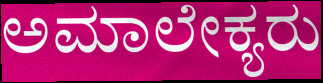
ಅಮಾಲೇಕ್ಯರು